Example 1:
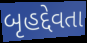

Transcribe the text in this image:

બૃહદ્દેવતા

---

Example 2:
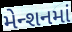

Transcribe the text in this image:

મેન્શનમાં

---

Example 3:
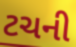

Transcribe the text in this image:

ટચની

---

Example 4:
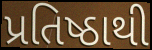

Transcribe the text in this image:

પ્રતિષ્ઠાથી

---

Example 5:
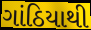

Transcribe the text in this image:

ગાંઠિયાથી